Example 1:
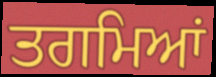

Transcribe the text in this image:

ਤਗਮਿਆਂ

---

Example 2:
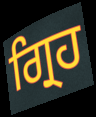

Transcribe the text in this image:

ਗ੍ਰਿਹ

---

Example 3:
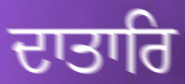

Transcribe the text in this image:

ਦਾਤਾਰਿ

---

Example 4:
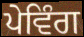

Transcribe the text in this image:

ਪੇਵਿੰਗ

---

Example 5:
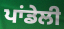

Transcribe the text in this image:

ਪਾਂਡੇਲੀ